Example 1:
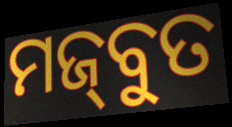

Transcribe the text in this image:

ମଜ୍‌ବୁତ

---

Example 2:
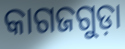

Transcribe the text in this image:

କାଗଜଗୁଡ଼ା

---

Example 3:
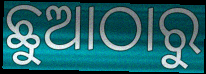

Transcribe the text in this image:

ଛୁଆଠାରୁ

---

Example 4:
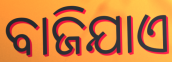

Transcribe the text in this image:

ବାଜିଯାଏ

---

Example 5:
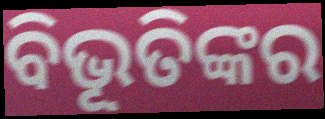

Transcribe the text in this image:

ବିଭୂତିଙ୍କର